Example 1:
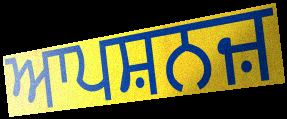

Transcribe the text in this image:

ਆਪਸ਼ਨਜ਼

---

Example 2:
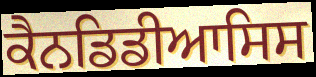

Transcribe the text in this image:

ਕੈਨਡਿਡੀਆਸਿਸ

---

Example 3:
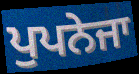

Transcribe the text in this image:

ਪੁਪਨੇਜਾ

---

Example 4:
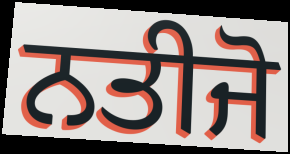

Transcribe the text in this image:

ਨਤੀਜੋ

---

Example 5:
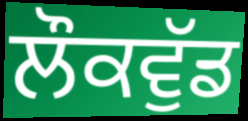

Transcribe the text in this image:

ਲੌਕਵੁੱਡ